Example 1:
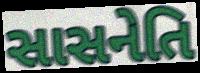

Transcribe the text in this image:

સાસનેતિ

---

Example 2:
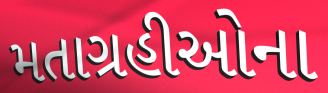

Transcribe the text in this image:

મતાગ્રહીઓના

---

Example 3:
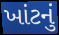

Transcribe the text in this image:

ખાંટનું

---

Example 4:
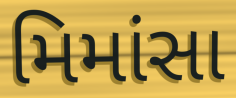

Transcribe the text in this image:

મિમાંસા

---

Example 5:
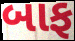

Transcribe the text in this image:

બાફ